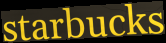
starbucks